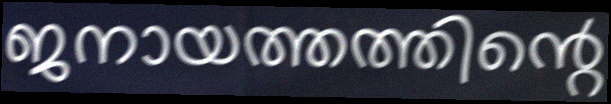
ജനായത്തത്തിന്റെ